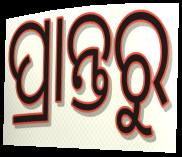
ପ୍ରାନ୍ତରୁ